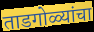
ताडगोळ्यांचा